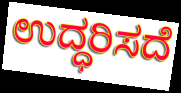
ಉದ್ಧರಿಸದೆ